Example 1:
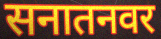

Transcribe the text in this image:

सनातनवर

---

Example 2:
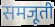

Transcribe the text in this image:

समजूती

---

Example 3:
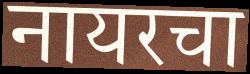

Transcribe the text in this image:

नायरचा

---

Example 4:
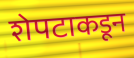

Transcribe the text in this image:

शेपटाकडून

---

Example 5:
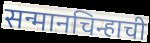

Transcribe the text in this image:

सन्मानचिन्हाची